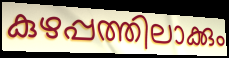
കുഴപ്പത്തിലാക്കും